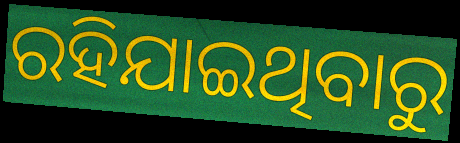
ରହିଯାଇଥିବାରୁ